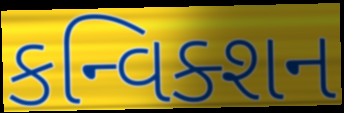
કન્વિક્શન